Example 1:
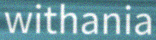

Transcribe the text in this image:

withania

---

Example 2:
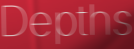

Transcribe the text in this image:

Depths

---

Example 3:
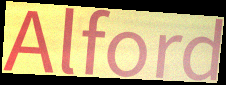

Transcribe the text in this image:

Alford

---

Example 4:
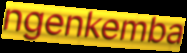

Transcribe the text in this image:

ngenkemba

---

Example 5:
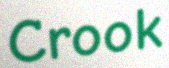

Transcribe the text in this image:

Crook